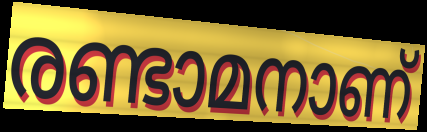
രണ്ടാമനാണ്